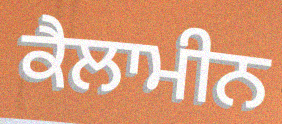
ਕੈਲਾਮੀਨ